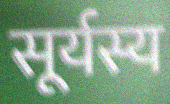
सूर्यस्य